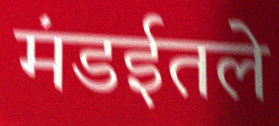
मंडईतले